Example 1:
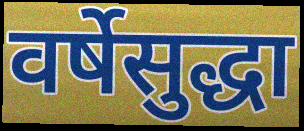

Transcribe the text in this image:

वर्षेसुद्धा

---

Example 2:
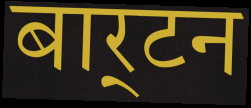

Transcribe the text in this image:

बार्टन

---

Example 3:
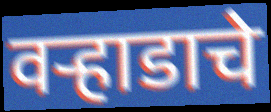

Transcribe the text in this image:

वऱ्हाडाचे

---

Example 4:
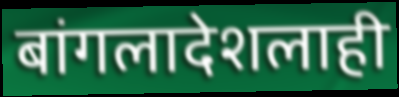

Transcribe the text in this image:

बांगलादेशलाही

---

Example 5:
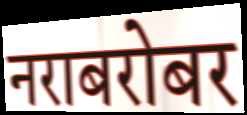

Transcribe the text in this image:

नराबरोबर